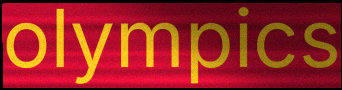
olympics